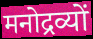
मनोद्रव्यों